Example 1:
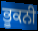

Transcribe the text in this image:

ਭੂਕਨੀ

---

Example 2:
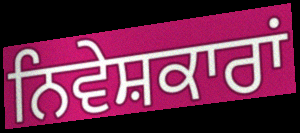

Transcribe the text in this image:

ਨਿਵੇਸ਼ਕਾਰਾਂ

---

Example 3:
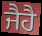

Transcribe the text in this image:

ਜੈਹੈ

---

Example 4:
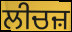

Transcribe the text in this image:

ਲੀਚਜ਼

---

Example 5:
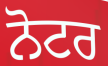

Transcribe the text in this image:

ਨੋਟਰ